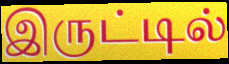
இருட்டில்